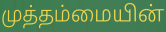
முத்தம்மையின்